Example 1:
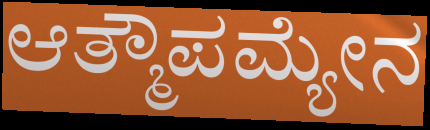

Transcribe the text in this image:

ಆತ್ಮೌಪಮ್ಯೇನ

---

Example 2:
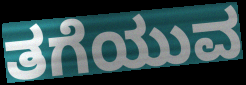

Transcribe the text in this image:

ತಗೆಯುವ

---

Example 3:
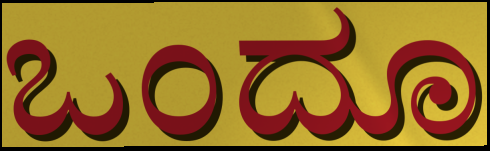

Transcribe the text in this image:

ಒಂದೂ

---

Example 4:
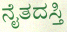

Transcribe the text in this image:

ನೈತದಸ್ತಿ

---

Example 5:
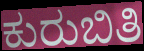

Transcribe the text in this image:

ಕುರುಬಿತಿ